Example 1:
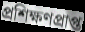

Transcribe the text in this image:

প্রশিক্ষণপ্রাপ্ত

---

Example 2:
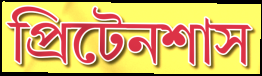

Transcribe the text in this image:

প্রিটেনশাস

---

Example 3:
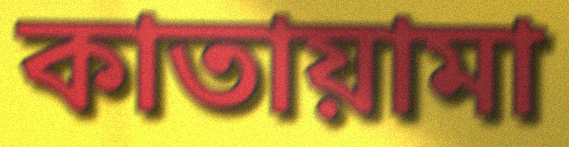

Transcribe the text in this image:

কাতায়ামা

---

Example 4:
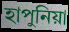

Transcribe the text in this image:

হাপুনিয়া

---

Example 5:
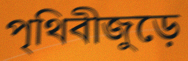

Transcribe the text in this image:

পৃথিবীজুড়ে